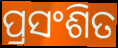
ପ୍ରସଂଶିତ